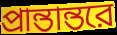
প্রান্তান্তরে